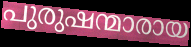
പുരുഷന്മാരായ